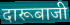
दारूबाजी